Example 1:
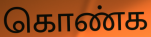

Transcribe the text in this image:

கொண்க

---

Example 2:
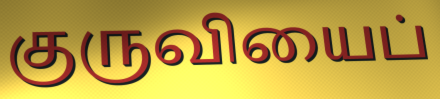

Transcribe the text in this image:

குருவியைப்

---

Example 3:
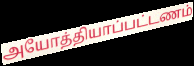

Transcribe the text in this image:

அயோத்தியாப்பட்டணம்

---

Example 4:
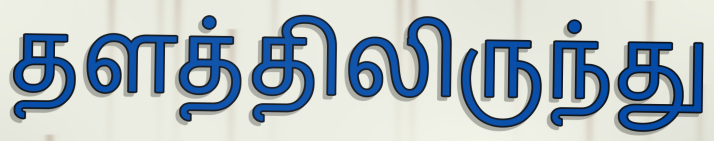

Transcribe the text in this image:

தளத்திலிருந்து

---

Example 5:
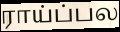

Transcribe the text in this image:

ராய்ப்பல